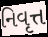
નિવૃત્ત